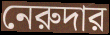
নেরুদার